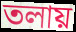
তলায়